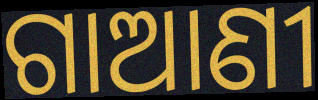
ଗାଆଣୀ